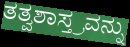
ತತ್ವಶಾಸ್ತ್ರವನ್ನು